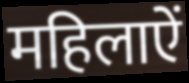
महिलाऐं